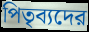
পিতৃব্যদের